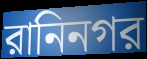
রানিনগর